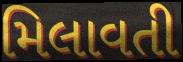
મિલાવતી